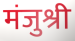
मंजुश्री